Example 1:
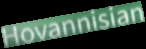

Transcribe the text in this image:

Hovannisian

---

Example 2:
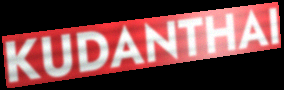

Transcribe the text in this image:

KUDANTHAI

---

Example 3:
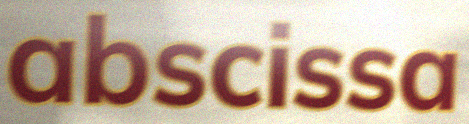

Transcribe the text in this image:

abscissa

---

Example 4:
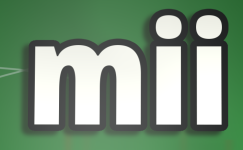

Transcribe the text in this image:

mii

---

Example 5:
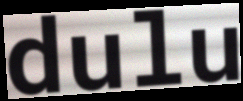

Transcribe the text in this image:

dulu